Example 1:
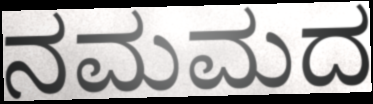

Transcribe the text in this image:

ನಮಮದ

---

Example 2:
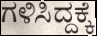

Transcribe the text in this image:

ಗಳಿಸಿದ್ದಕ್ಕೆ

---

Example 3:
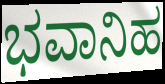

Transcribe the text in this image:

ಭವಾನಿಹ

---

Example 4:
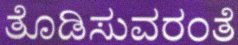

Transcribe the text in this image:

ತೊಡಿಸುವರಂತೆ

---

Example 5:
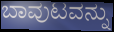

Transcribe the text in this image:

ಬಾವುಟವನ್ನು